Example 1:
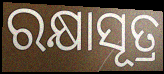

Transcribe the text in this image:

ରକ୍ଷାସୂତ୍ର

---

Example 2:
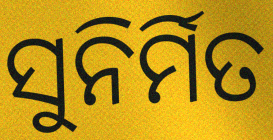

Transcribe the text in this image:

ସୁନିର୍ମିତ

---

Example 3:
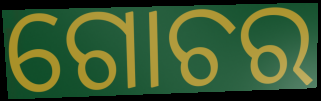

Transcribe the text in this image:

ଗୋଚର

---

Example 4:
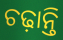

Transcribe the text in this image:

ଚଢ଼ାନ୍ତି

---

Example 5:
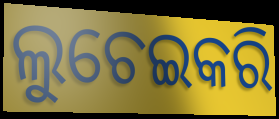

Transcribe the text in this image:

ଲୁଚେଇକରି